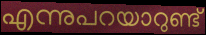
എന്നുപറയാറുണ്ട്